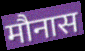
मौनास